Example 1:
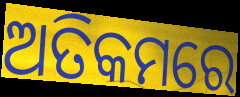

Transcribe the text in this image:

ଅତିକମରେ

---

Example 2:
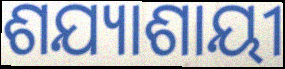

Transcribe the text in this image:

ଶଯ୍ୟାଶାୟୀ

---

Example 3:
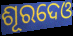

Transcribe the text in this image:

ଶୂରଦେଓ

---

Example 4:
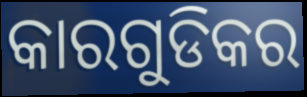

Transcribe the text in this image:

କାରଗୁଡିକର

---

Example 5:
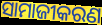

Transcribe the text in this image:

ସାମାଜୀକରଣ